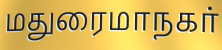
மதுரைமாநகர்